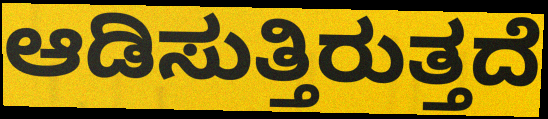
ಆಡಿಸುತ್ತಿರುತ್ತದೆ